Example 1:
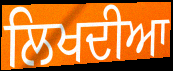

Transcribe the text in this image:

ਲਿਖਦੀਆ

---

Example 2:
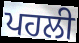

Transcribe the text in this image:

ਪਹਲੀ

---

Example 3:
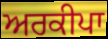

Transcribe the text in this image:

ਅਰਕੀਪਾ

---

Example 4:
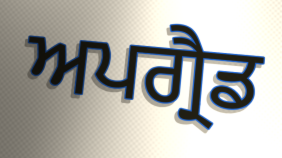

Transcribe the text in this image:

ਅਪਗ੍ਰੈਡ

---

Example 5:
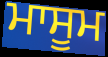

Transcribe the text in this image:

ਮਾਸੂਮ